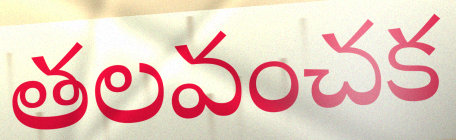
తలవంచక